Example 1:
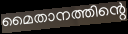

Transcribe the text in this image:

മൈതാനത്തിന്റെ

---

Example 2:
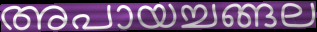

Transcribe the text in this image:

അപായച്ചങ്ങല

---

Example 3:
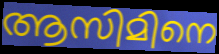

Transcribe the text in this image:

ആസിമിനെ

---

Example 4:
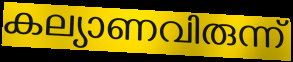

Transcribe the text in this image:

കല്യാണവിരുന്ന്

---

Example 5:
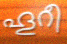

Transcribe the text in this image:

ഹൂറീ